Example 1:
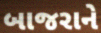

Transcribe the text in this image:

બાજરાને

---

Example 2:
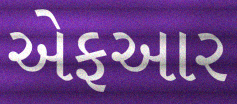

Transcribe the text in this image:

એફઆર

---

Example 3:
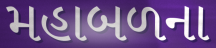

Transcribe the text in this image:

મહાબળના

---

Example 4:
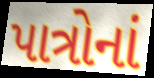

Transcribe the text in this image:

પાત્રોનાં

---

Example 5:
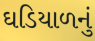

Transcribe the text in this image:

ઘડિયાળનું